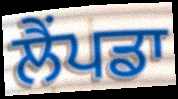
ਲੈਂਪਡਾ